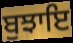
ਬੁਝਾਇ